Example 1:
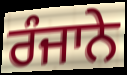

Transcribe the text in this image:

ਰੰਜਾਨੇ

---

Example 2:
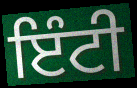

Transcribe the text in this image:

ਇੰਟੀ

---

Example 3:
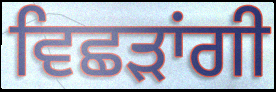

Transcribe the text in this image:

ਵਿਛੜਾਂਗੀ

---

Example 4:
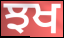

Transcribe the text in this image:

ਝਖ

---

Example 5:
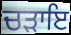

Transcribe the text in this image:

ਚੜਾਇ